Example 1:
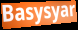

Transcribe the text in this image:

Basysyar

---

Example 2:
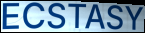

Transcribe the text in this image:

ECSTASY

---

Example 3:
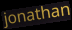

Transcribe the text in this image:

jonathan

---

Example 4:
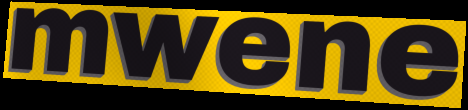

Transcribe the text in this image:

mwene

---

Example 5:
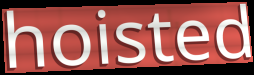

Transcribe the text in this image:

hoisted